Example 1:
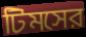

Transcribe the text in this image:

টিমসের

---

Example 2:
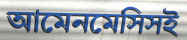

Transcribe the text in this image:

আমেনমেসিসই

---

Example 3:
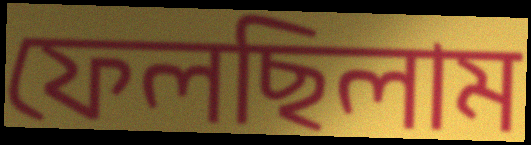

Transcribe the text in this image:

ফেলছিলাম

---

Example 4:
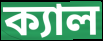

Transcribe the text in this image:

ক্যাল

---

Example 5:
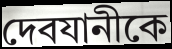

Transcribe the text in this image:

দেবযানীকে